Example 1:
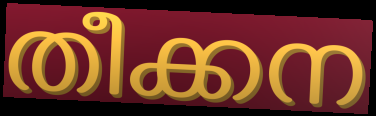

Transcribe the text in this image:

തീക്കന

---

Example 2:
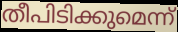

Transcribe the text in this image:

തീപിടിക്കുമെന്ന്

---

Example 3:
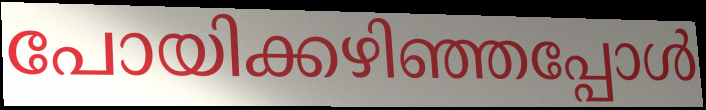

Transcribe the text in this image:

പോയിക്കഴിഞ്ഞപ്പോൾ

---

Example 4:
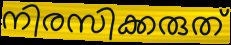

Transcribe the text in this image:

നിരസിക്കരുത്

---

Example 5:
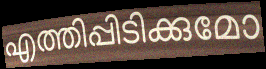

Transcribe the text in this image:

എത്തിപ്പിടിക്കുമോ